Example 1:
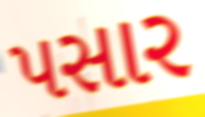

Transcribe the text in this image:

પસાર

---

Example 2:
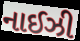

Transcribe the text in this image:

નાઈઝી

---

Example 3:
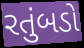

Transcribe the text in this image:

રતુંબડો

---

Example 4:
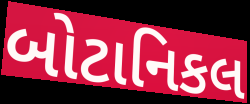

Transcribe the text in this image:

બોટાનિકલ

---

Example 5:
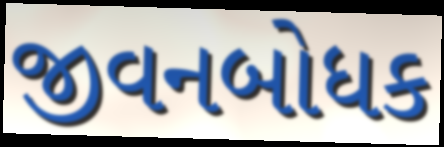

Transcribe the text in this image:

જીવનબોધક